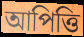
আপিত্তি